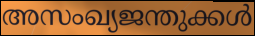
അസംഖ്യജന്തുക്കൾ